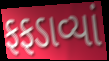
ફફડાવ્યાં